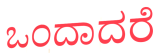
ಒಂದಾದರೆ